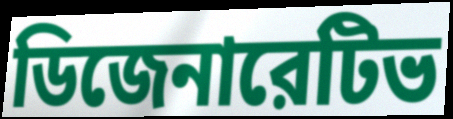
ডিজেনারেটিভ